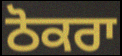
ਠੋਕਰਾ